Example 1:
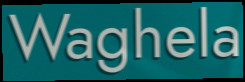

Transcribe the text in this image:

Waghela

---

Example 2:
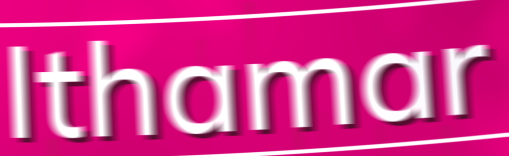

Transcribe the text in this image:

Ithamar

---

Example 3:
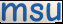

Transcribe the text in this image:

msu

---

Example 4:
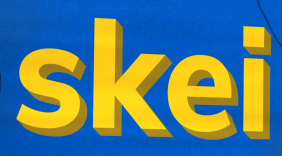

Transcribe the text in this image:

skei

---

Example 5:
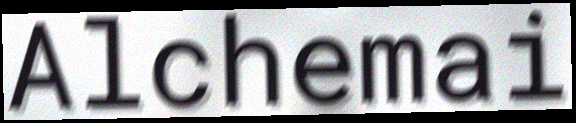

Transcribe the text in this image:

Alchemai